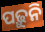
ପଢ଼ୁନି